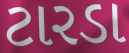
ટારડા